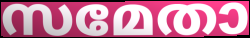
സമേതാ